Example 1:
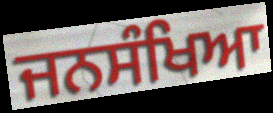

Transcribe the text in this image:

ਜਨਸੰਖਿਆ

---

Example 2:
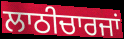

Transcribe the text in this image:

ਲਾਠੀਚਾਰਜਾਂ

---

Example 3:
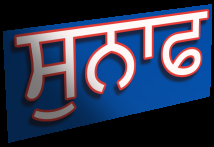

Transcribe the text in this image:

ਸੁਨਾਫ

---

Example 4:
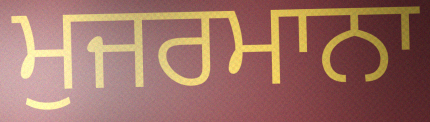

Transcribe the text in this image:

ਮੁਜਰਮਾਨਾ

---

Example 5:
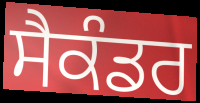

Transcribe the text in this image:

ਸੈਕੰਡਰ